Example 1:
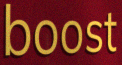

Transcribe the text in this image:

boost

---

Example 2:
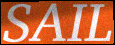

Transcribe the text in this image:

SAIL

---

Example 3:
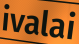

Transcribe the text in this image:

ivalai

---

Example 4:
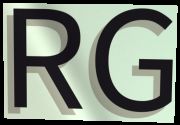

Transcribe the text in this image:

RG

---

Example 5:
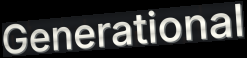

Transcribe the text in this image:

Generational